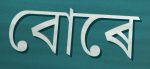
বোৰে